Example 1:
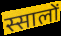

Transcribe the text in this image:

स्सालों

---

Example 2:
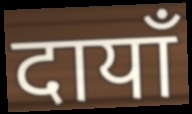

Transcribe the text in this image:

दायाँ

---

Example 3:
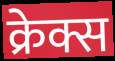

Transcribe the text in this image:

क्रेक्स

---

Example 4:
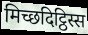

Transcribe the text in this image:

मिच्छदिट्ठिस्स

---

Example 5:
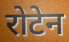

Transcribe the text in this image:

रोटेन